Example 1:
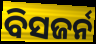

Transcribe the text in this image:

ବିସଜର୍ନ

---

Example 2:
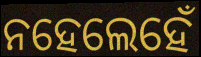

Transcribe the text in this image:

ନହେଲେହେଁ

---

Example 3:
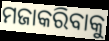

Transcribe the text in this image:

ମଜାକରିବାକୁ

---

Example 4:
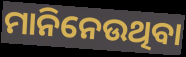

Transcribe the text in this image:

ମାନିନେଉଥିବା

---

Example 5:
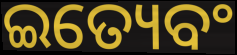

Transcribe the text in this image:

ଇତ୍ୟେବଂ